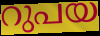
റുപയ